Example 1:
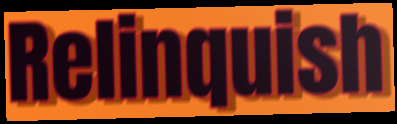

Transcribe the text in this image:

Relinquish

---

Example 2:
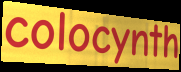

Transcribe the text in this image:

colocynth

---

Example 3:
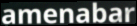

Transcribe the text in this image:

amenabar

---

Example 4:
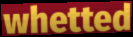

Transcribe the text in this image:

whetted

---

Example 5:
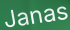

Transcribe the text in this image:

Janas